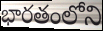
భారతంలోని